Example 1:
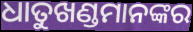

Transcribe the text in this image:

ଧାତୁଖଣ୍ଡମାନଙ୍କର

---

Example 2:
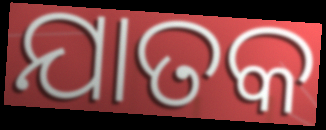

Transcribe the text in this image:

ଯାତକ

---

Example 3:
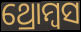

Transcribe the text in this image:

ଥ୍ରୋମ୍ବସ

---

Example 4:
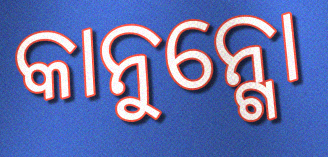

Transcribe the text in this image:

କାନୁନ୍ଗୋ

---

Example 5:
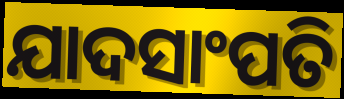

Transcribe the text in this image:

ଯାଦସାଂପତି